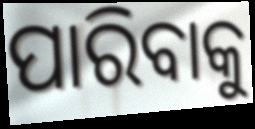
ପାରିବାକୁ